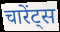
चारेंट्स